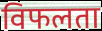
विफलता